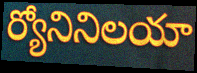
ర్యోనినిలయా